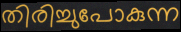
തിരിച്ചുപോകുന്ന